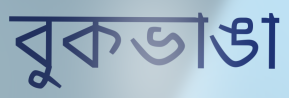
বুকভাঙা